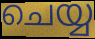
ചെയ്യ